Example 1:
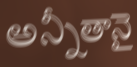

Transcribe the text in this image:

అన్నీతానై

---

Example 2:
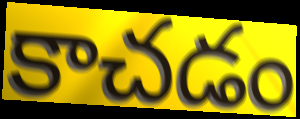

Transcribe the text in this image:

కాచడం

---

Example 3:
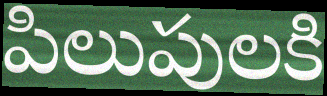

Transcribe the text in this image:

పిలుపులకి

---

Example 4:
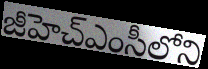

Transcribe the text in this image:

జీహెచ్ఎంసీలోని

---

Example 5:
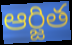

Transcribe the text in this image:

ఆర్జిత